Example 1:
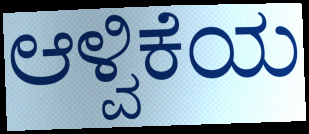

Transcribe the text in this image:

ಆಳ್ವಿಕೆಯ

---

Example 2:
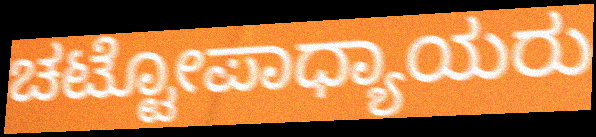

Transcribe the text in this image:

ಚಟ್ಟೋಪಾಧ್ಯಾಯರು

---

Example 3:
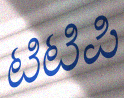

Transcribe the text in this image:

ಟಿಟಿಪಿ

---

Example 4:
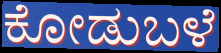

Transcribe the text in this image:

ಕೋಡುಬಳೆ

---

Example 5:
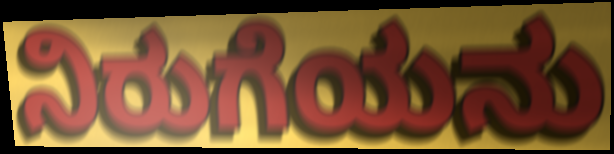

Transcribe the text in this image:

ನಿರುಗೆಯನು